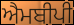
ਐਮਬੀਪੀ